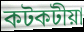
কটকটীয়া